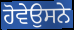
ਹੋਵੇਉਸਨੇ